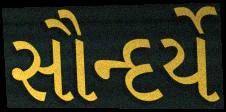
સૌન્દર્યે